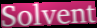
Solvent